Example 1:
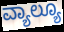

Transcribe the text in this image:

ವ್ಯಾಲ್ಯೂ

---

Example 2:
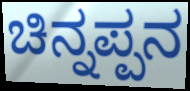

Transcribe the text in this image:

ಚಿನ್ನಪ್ಪನ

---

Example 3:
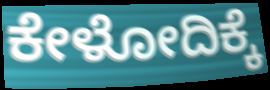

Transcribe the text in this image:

ಕೇಳೋದಿಕ್ಕೆ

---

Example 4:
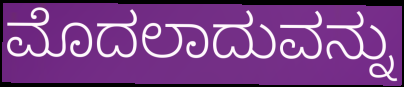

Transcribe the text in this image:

ಮೊದಲಾದುವನ್ನು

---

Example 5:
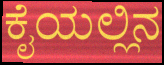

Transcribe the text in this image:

ಕೈಯಲ್ಲಿನ